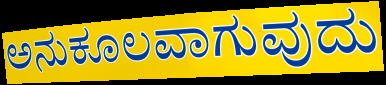
ಅನುಕೂಲವಾಗುವುದು